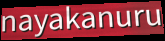
nayakanuru